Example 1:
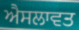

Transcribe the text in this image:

ਐਸਲਾਵਤ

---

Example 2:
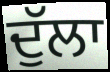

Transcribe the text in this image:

ਦੁੱਲਾ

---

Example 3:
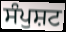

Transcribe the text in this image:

ਸੰਪੁਸ਼ਟ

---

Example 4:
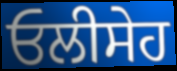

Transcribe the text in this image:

ਓਲੀਸੇਹ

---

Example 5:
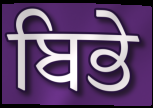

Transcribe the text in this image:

ਬਿਭੇ